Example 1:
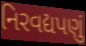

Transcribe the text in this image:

નિરવદ્યપણું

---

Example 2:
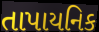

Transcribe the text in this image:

તાપાયનિક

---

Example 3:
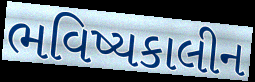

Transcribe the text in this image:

ભવિષ્યકાલીન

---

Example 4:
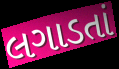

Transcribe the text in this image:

લગાડતાં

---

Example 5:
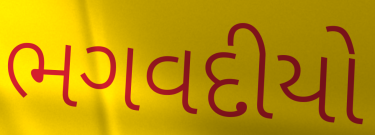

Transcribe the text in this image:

ભગવદીયો